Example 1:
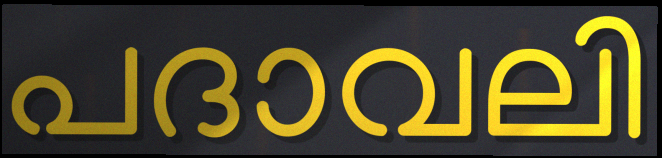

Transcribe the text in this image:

പദാവലി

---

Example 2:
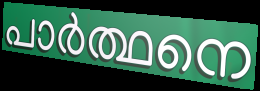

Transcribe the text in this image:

പാർത്ഥനെ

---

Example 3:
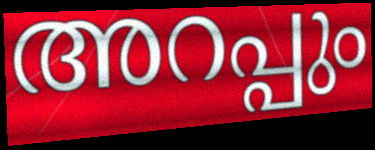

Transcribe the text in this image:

അറപ്പും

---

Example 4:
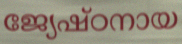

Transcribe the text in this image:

ജ്യേഷ്ഠനായ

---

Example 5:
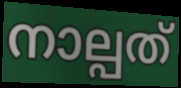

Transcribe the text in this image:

നാല്പത്